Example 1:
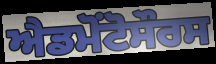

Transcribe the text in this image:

ਐਡਮੋਂਟੋਸੌਰਸ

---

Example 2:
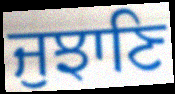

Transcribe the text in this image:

ਜੁਝਾਣਿ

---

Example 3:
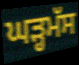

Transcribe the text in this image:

ਘੜ੍ਹਮੱਸ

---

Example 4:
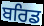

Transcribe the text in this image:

ਬਰਿਡ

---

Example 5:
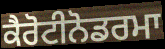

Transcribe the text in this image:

ਕੈਰੋਟੀਨੋਡਰਮਾ